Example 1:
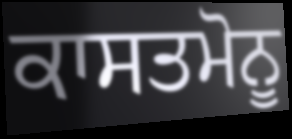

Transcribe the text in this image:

ਕਾਸਤਮੋਨੂ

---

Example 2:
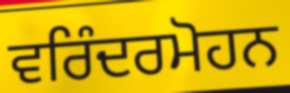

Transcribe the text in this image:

ਵਰਿੰਦਰਮੋਹਨ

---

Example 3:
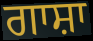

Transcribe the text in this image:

ਗਾਸ਼ਾ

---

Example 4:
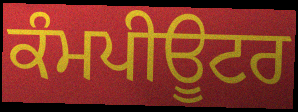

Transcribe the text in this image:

ਕੰਮਪੀਊਟਰ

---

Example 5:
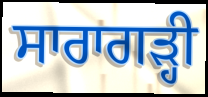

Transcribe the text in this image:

ਸਾਰਾਗੜ੍ਹੀ